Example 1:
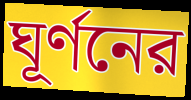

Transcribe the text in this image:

ঘূর্ণনের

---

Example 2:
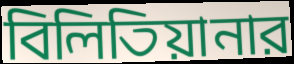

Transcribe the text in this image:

বিলিতিয়ানার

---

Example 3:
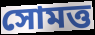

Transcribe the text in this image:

সোমত্ত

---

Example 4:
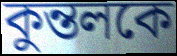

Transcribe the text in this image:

কুন্তলকে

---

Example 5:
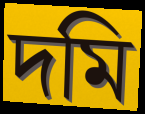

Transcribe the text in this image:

দমি